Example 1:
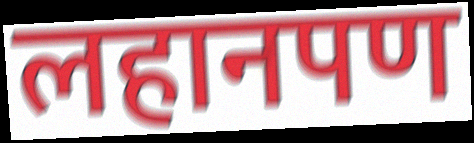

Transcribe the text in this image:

लहानपण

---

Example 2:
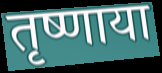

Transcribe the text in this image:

तृष्णाया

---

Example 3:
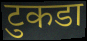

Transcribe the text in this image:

टुकडा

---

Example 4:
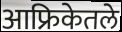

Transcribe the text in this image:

आफ्रिकेतले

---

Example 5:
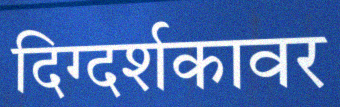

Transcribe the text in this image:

दिग्दर्शकावर